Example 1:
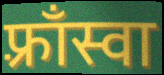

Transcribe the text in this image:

फ़्राँस्वा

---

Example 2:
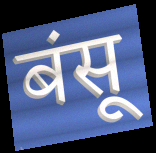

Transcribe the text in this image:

बंसू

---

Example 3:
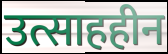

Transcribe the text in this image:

उत्साहहीन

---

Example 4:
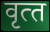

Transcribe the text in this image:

वृत्‍त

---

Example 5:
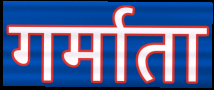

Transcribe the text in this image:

गर्माता